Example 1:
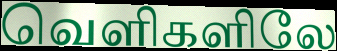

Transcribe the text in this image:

வெளிகளிலே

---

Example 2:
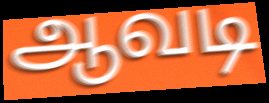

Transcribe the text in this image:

ஆவடி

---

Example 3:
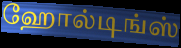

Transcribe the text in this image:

ஹோல்டிங்ஸ்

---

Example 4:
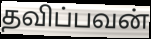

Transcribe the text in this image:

தவிப்பவன்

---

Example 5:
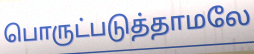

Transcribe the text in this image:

பொருட்படுத்தாமலே